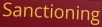
Sanctioning